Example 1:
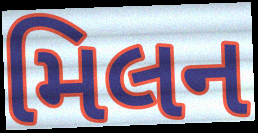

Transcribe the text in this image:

મિલન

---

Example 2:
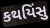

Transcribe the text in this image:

કથયિંસુ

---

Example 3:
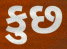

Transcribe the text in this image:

કુછ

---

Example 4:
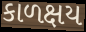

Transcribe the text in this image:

કાળક્ષય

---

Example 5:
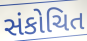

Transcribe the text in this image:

સંકોચિત